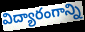
విద్యారంగాన్ని